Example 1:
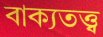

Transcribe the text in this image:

বাক্যতত্ত্ব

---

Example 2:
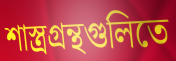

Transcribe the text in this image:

শাস্ত্রগ্রন্থগুলিতে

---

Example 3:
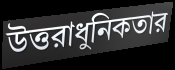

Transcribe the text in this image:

উত্তরাধুনিকতার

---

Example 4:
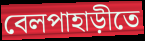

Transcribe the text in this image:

বেলপাহাড়ীতে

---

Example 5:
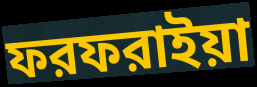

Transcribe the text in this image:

ফরফরাইয়া